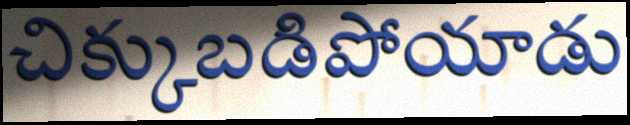
చిక్కుబడిపోయాడు